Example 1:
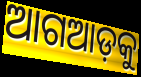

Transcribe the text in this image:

ଆଗଆଡ଼କୁ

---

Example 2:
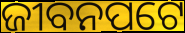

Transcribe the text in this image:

ଜୀବନପଟେ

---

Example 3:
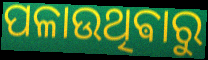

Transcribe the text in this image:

ପଳାଉଥିଵାରୁ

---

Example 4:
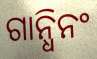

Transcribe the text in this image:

ଗାନ୍ଧିନଂ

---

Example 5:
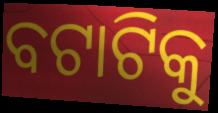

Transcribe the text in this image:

ବଟାଟିକୁ